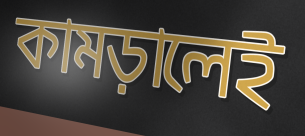
কামড়ালেই